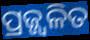
ପ୍ରଜ୍ଜ୍ବଳିତ